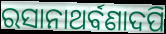
ରସାନାଥର୍ବଣାଦପି